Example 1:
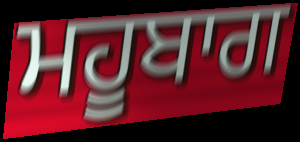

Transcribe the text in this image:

ਮਹੂਬਾਗ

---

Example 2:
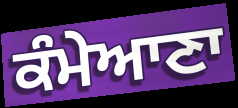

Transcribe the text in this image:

ਕੰਮੇਆਣਾ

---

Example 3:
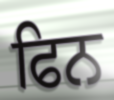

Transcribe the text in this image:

ਫਿਨ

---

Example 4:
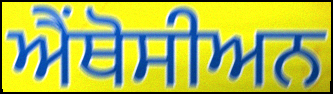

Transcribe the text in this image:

ਐਂਥੋਸੀਅਨ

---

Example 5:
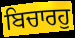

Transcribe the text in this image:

ਬਿਚਾਰਹੁ